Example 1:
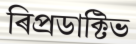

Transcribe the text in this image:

ৰিপ্ৰডাক্টিভ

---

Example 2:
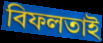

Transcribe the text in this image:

বিফলতাই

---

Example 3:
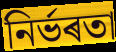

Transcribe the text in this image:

নিৰ্ভৰতা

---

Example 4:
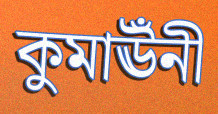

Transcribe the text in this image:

কুমাঊঁনী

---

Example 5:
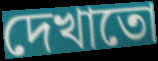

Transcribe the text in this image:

দেখাতো